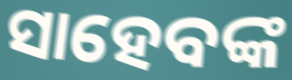
ସାହେବଙ୍କ